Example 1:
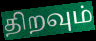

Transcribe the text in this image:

திறவும்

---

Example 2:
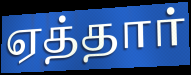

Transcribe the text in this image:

ஏத்தார்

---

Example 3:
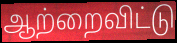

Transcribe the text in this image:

ஆற்றைவிட்டு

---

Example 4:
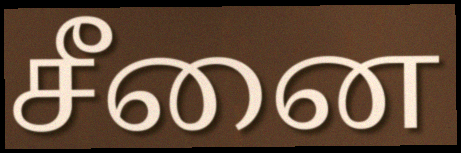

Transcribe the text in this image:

சீனை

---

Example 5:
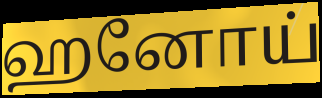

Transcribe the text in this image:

ஹனோய்